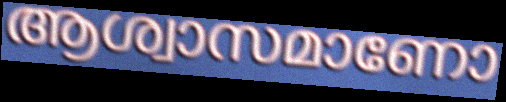
ആശ്വാസമാണോ